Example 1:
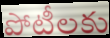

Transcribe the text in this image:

పోటీలకు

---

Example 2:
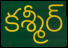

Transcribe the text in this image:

కశ్మీర్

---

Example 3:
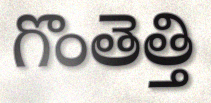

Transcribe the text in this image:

గొంతెత్తి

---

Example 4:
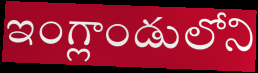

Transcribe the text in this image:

ఇంగ్లాండులోని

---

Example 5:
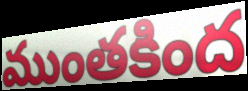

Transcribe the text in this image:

ముంతకింద